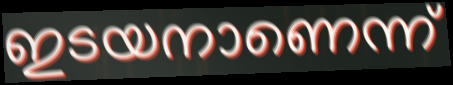
ഇടയനാണെന്ന്